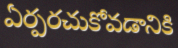
ఏర్పరచుకోవడానికి